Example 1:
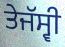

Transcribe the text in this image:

ਤੇਜੱਸ੍ਵੀ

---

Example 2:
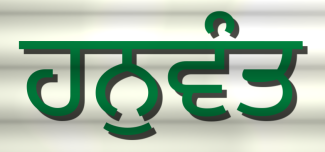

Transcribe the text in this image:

ਹਨੁਵੰਤ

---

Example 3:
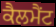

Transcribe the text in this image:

ਕੈਲਮੈਂਟ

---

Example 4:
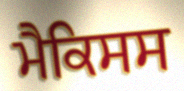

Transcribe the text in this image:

ਮੈਕਿਸਸ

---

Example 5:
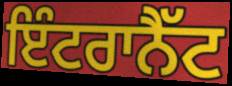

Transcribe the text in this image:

ਇੰਟਰਾਨੈੱਟ